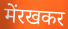
मेंरखकर